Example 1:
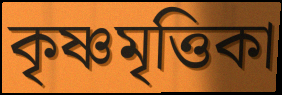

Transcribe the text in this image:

কৃষ্ণমৃত্তিকা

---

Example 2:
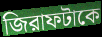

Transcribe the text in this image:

জিরাফটাকে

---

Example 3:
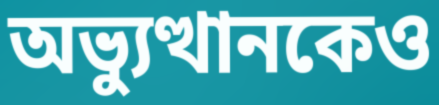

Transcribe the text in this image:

অভ্যুত্থানকেও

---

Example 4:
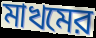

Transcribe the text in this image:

মাখমের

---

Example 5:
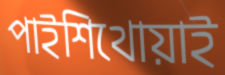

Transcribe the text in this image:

পাইশিথোয়াই